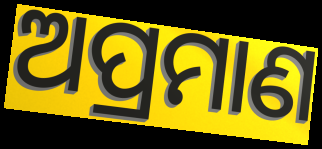
ଅପ୍ରମାଣ